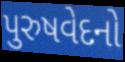
પુરુષવેદનો